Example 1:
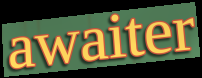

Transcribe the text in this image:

awaiter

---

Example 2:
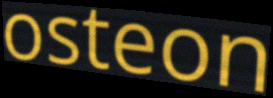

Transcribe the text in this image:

osteon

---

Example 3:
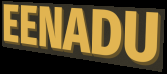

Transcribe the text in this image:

EENADU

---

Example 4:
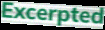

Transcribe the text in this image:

Excerpted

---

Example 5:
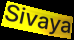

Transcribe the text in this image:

Sivaya